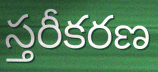
స్తరీకరణ